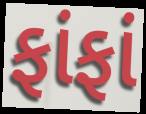
ફાંફાં